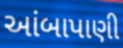
આંબાપાણી